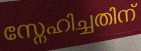
സ്നേഹിച്ചതിന്